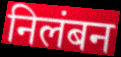
निलंबन